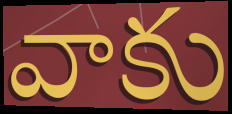
వాకు